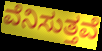
ವೆನಿಸುತ್ತವೆ